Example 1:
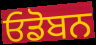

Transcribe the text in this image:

ਓਡੋਬਨ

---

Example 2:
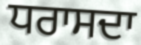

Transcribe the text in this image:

ਧਰਾਸਦਾ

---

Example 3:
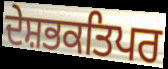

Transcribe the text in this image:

ਦੇਸ਼ਭਕਤਿਪਰ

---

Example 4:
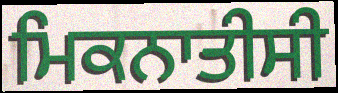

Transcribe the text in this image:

ਮਿਕਨਾਤੀਸੀ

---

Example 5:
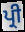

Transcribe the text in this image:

ਪ੍ਰੀ